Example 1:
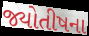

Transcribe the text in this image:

જ્યોતીષના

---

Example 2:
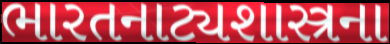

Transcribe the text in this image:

ભારતનાટ્યશાસ્ત્રના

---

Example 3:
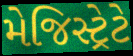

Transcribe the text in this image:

મેજિસ્ટ્રેટે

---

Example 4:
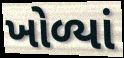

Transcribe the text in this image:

ખોળ્યાં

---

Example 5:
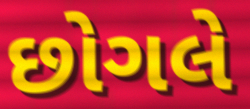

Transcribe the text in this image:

છોગલે